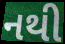
નથી